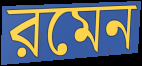
রমেন